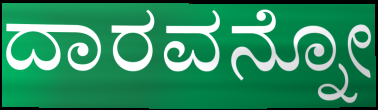
ದಾರವನ್ನೋ